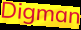
Digman